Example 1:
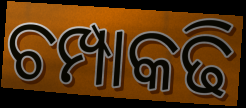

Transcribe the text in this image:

ଚମ୍ପାକଢି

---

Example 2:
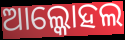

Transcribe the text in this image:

ଆଲ୍କୋହଲ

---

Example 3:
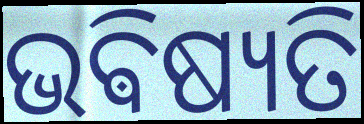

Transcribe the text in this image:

ଭଵିଷ୍ୟତି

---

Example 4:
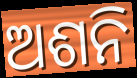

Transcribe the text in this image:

ଅଶନି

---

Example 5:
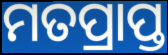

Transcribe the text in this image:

ମତପ୍ରାପ୍ତ